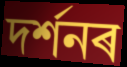
দৰ্শনৰ